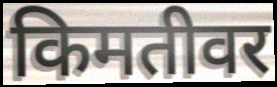
किमतीवर